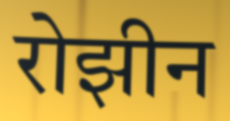
रोझीन